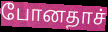
போனதாச்